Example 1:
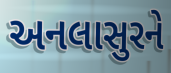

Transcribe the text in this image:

અનલાસુરને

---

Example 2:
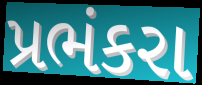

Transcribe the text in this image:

પ્રભંકરા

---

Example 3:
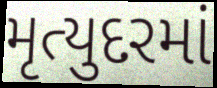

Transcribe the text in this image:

મૃત્યુદરમાં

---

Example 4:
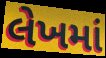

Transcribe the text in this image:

લેખમાં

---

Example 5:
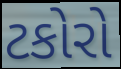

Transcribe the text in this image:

ટકોરો